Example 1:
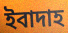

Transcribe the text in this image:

ইবাদাহ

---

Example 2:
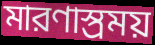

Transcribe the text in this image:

মারণাস্ত্রময়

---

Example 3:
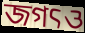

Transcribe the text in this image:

জগৎও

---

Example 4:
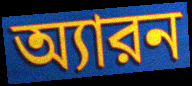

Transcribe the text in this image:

অ্যারন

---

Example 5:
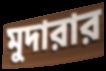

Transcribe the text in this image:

মুদারার